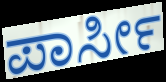
ಪಾರ್ಸೀ